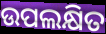
ଉପଲକ୍ଷିତ